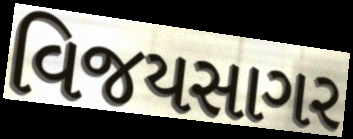
વિજયસાગર